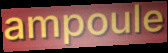
ampoule